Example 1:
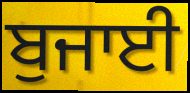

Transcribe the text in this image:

ਬੁਜਾਈ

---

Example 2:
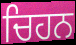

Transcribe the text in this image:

ਚਿਹਨ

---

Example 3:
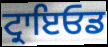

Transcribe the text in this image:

ਟ੍ਰਾਇਓਡ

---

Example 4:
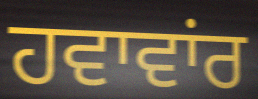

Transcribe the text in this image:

ਹਵਾਵਾਂਰ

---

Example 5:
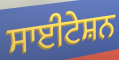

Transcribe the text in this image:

ਸਾਈਟੇਸ਼ਨ